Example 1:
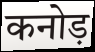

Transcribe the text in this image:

कनोड़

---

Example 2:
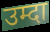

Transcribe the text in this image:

उम्दा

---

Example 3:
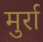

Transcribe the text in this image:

मुर्रा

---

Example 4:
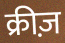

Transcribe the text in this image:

क्रीज़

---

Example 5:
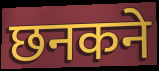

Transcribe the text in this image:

छनकने